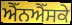
ਐੱਨਐੱਸਕੇ